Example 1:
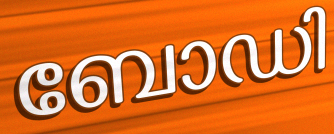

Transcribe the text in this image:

ബോഡി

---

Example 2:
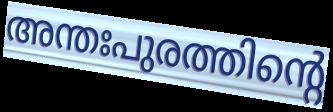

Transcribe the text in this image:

അന്തഃപുരത്തിന്റെ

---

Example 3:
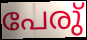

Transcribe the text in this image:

പേരു്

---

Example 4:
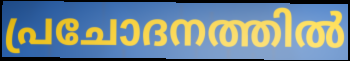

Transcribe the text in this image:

പ്രചോദനത്തിൽ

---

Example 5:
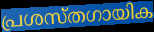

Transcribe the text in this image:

പ്രശസ്തഗായിക